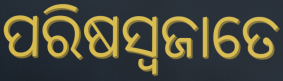
ପରିଷସ୍ଵଜାତେ